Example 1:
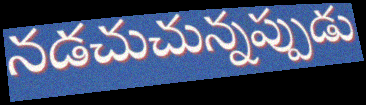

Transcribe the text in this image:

నడచుచున్నప్పుడు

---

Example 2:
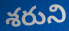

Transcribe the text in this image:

శరుని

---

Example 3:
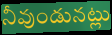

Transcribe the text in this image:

నీవుండునట్లు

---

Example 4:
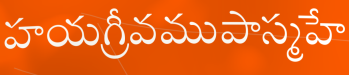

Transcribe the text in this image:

హయగ్రీవముపాస్మహే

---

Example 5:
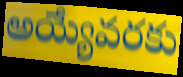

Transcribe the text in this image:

అయ్యేవరకు